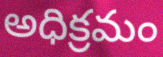
అధిక్రమం